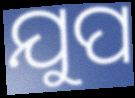
ଯୁପ